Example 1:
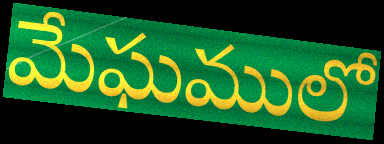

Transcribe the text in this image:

మేఘములో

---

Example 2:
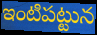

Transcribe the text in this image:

ఇంటిపట్టున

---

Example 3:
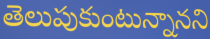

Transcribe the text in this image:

తెలుపుకుంటున్నానని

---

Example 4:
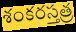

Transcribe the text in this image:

శంకరస్తత్ర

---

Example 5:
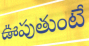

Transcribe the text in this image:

ఊపుతుంటే